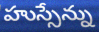
హుస్సేన్ను